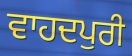
ਵਾਹਦਪੁਰੀ